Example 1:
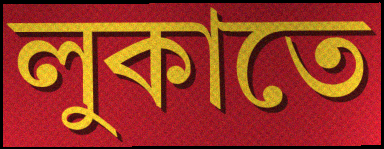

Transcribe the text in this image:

লুকাতে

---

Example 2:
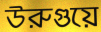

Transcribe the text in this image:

উরুগুয়ে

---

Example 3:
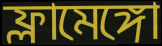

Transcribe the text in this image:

ফ্লামেঙ্গো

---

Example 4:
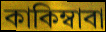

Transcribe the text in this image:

কাকিম্বাবা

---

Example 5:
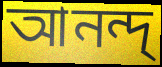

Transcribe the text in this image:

আনন্দ্